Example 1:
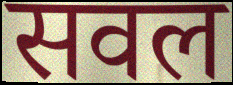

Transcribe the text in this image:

सवल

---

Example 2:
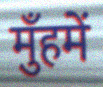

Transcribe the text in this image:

मुँहमें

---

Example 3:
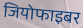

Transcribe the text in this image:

जियोफाइबर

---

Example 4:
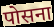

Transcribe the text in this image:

पोसना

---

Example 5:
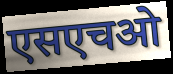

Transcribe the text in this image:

एसएचओ